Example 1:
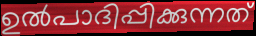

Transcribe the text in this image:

ഉൽപാദിപ്പിക്കുന്നത്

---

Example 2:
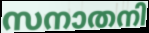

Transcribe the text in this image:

സനാതനി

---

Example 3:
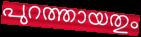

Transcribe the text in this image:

പുറത്തായതും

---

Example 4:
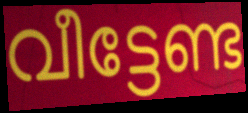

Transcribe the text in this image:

വീട്ടേണ്ട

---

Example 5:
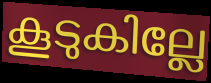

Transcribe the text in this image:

കൂടുകില്ലേ